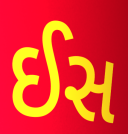
ઈસ